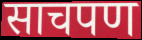
साचपण